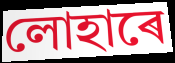
লোহাৰে